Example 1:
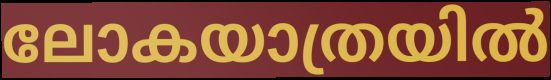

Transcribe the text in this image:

ലോകയാത്രയിൽ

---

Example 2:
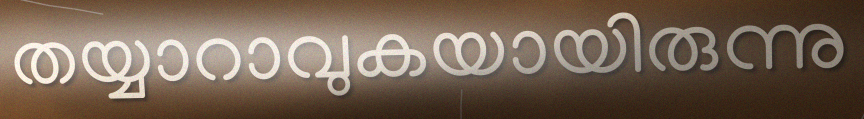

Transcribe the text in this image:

തയ്യാറാവുകയായിരുന്നു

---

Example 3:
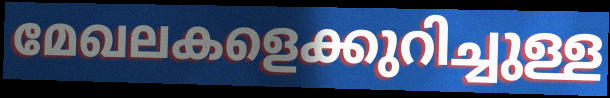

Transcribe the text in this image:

മേഖലകളെക്കുറിച്ചുള്ള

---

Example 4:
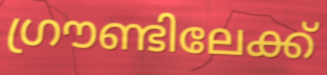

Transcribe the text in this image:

ഗ്രൗണ്ടിലേക്ക്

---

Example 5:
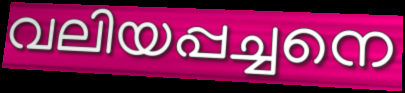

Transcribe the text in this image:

വലിയപ്പച്ചനെ